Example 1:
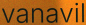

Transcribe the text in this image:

vanavil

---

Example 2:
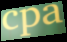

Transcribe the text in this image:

cpa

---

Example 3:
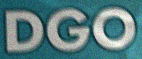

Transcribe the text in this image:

DGO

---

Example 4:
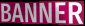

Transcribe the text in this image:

BANNER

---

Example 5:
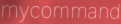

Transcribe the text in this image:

mycommand